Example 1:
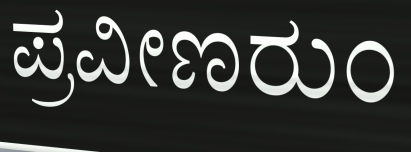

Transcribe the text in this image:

ಪ್ರವೀಣರುಂ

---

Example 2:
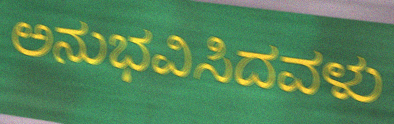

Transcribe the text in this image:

ಅನುಭವಿಸಿದವಳು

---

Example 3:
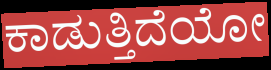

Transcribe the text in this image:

ಕಾಡುತ್ತಿದೆಯೋ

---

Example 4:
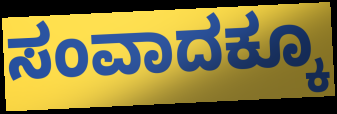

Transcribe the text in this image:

ಸಂವಾದಕ್ಕೂ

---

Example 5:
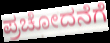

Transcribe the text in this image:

ಪ್ರಚೋದನೆಗೆ